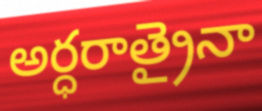
అర్ధరాత్రైనా